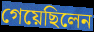
গেয়েছিলেন